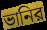
ভানির